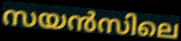
സയൻസിലെ